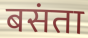
बसंता